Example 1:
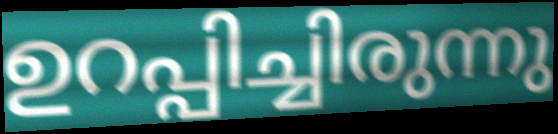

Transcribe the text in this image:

ഉറപ്പിച്ചിരുന്നു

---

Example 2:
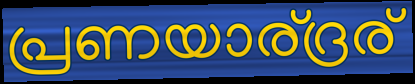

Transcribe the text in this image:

പ്രണയാര്ദ്രര്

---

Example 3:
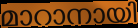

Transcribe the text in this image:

മാറാനായി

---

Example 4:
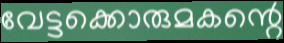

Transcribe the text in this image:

വേട്ടക്കൊരുമകന്റെ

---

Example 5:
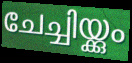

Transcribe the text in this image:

ചേച്ചിയ്ക്കും